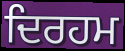
ਦਿਰਹਮ